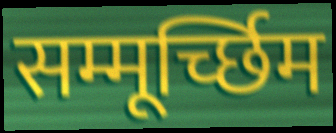
सम्मूर्च्छिम